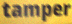
tamper